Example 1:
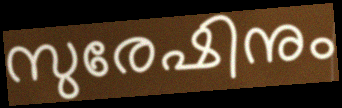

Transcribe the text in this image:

സുരേഷിനും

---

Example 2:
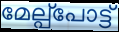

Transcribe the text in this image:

മേല്പ്പോട്ട്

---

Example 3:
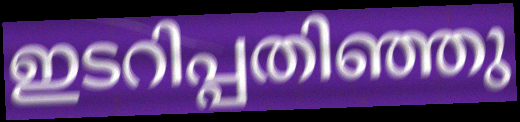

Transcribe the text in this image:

ഇടറിപ്പതിഞ്ഞു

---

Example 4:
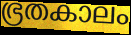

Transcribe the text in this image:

ഭ്രതകാലം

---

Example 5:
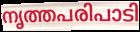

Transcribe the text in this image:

നൃത്തപരിപാടി